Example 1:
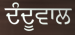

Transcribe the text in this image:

ਦੰਦੂਵਾਲ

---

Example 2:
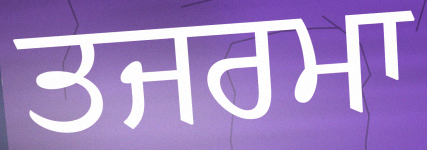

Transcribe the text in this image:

ਤਜਰਮਾ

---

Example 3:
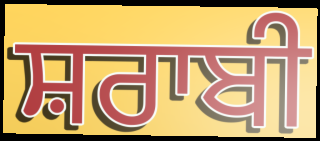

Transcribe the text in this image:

ਸ਼ਰਾਬੀ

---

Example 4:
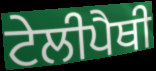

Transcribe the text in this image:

ਟੇਲੀਪੈਥੀ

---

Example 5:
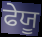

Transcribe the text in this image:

ਫੇਯੂ